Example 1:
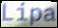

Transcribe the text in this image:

Lipa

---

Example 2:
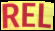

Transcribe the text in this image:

REL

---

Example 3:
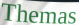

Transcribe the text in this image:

Themas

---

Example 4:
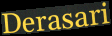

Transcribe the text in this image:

Derasari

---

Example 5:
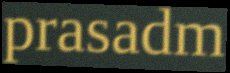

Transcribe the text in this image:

prasadm